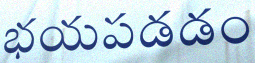
భయపడడం